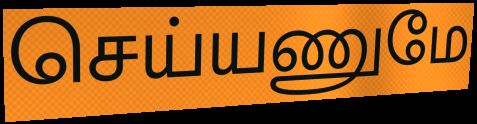
செய்யணுமே